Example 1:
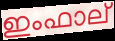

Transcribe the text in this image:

ഇംഫാല്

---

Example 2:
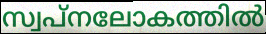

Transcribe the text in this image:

സ്വപ്നലോകത്തിൽ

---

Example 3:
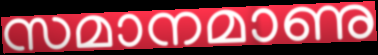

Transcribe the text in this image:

സമാനമാണു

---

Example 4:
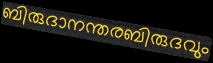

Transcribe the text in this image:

ബിരുദാനന്തരബിരുദവും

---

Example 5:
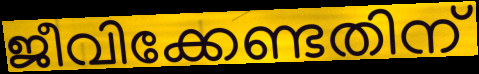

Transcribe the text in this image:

ജീവിക്കേണ്ടതിന്